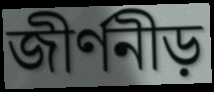
জীর্ণনীড়